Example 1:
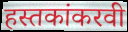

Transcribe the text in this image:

हस्तकांकरवी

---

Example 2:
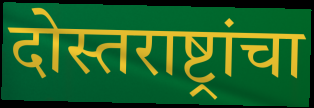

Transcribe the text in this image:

दोस्तराष्ट्रांचा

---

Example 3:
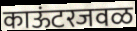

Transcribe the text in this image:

काऊंटरजवळ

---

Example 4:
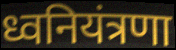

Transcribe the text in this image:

ध्वनियंत्रणा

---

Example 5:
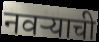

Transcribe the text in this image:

नवऱ्याची